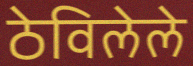
ठेविलेले